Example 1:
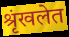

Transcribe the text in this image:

श्रृंखलेत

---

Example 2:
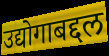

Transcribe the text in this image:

उद्योगाबद्दल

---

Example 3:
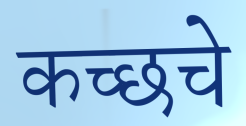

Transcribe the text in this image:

कच्छचे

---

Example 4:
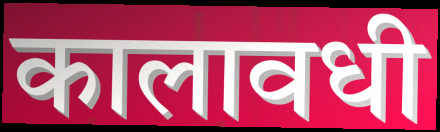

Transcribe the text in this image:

कालावधी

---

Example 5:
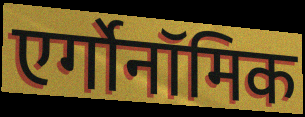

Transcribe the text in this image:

एर्गोनॉमिक